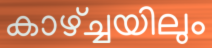
കാഴ്ച്ചയിലും